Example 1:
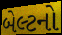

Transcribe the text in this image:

બેલ્ટનો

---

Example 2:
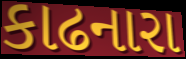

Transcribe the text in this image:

કાઢનારા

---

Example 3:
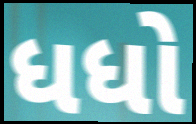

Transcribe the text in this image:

ધધો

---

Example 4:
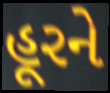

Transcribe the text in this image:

હૂરને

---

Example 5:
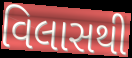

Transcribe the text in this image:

વિલાસથી